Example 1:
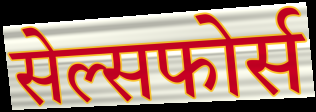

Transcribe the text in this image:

सेल्सफोर्स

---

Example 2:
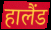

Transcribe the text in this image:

हालैंड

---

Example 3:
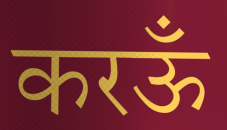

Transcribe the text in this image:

करऊँ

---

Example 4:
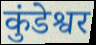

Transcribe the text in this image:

कुंडेश्वर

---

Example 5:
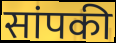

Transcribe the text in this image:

सांपकी